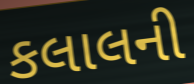
કલાલની